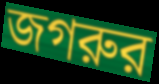
জগরুর